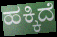
ಹಕ್ಕಿದೆ